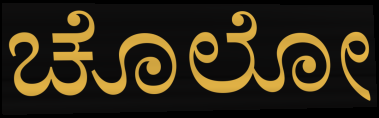
ಚೊಲೋ